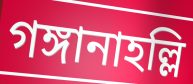
গঙ্গানাহল্লি